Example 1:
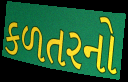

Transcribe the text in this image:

કળતરનો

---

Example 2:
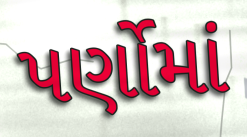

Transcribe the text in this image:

પર્ણોમાં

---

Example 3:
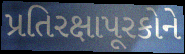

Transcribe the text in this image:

પ્રતિરક્ષાપૂરકોને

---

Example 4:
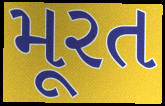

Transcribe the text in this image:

મૂરત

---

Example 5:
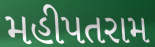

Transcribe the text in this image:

મહીપતરામ